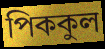
পিককুল